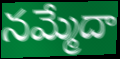
నమ్మేదా